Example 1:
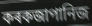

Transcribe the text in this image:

কৰকজাপানিজ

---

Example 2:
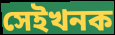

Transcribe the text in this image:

সেইখনক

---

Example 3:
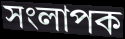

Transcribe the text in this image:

সংলাপক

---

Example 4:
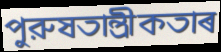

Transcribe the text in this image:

পুৰুষতান্ত্ৰীকতাৰ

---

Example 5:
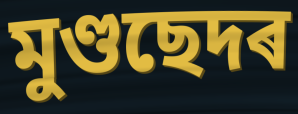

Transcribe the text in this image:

মুণ্ডছেদৰ